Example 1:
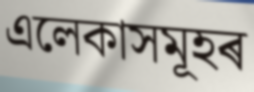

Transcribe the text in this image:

এলেকাসমূহৰ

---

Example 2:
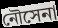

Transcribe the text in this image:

নৌসেনা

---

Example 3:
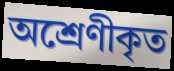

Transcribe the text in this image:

অশ্ৰেণীকৃত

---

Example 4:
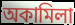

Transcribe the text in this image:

অকামিলা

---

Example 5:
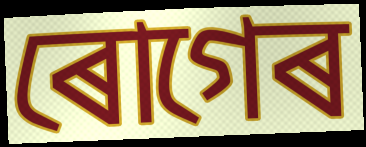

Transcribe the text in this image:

ৰোগেৰ